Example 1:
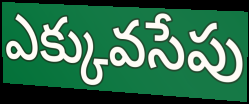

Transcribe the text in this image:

ఎక్కువసేపు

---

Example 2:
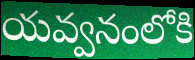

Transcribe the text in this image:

యవ్వనంలోకి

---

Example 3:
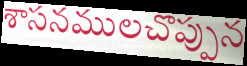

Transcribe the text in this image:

శాసనములచొప్పున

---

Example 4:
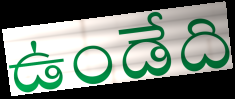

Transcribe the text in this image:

ఉండేది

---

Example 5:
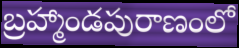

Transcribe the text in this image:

బ్రహ్మాండపురాణంలో